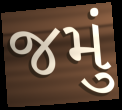
જમું